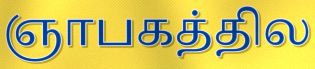
ஞாபகத்தில